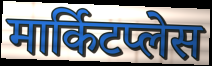
मार्किटप्लेस